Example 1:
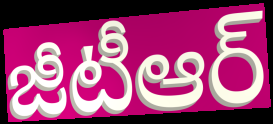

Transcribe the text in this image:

జీటీఆర్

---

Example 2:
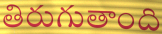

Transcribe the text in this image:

తిరుగుతాంది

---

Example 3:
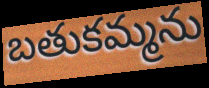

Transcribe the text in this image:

బతుకమ్మను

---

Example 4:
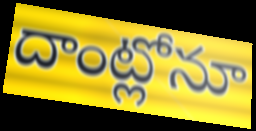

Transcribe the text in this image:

దాంట్లోనూ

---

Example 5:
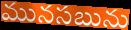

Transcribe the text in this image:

మునసబును